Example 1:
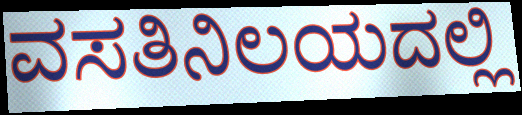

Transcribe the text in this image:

ವಸತಿನಿಲಯದಲ್ಲಿ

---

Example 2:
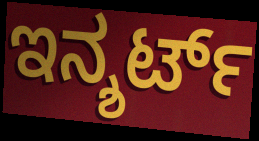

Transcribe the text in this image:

ಇನ್ಶರ್ಟ್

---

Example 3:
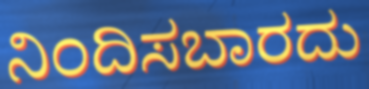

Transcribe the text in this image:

ನಿಂದಿಸಬಾರದು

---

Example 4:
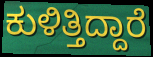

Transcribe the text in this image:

ಕುಳಿತ್ತಿದ್ದಾರೆ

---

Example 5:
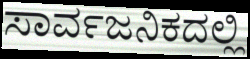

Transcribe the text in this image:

ಸಾರ್ವಜನಿಕದಲ್ಲಿ